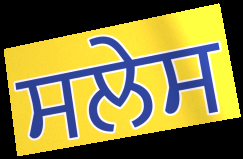
ਸਲੇਸ